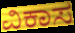
ವಿಕಾಸ